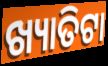
ଖ୍ୟାତିଟା